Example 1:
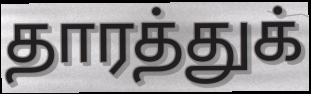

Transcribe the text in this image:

தாரத்துக்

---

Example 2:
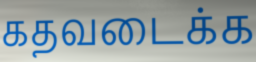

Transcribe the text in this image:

கதவடைக்க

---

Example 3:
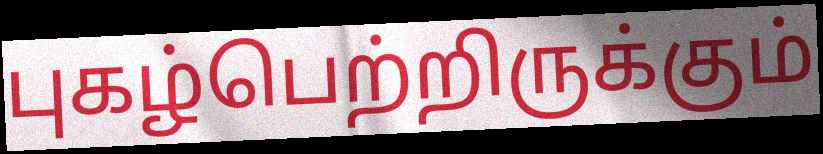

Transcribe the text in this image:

புகழ்பெற்றிருக்கும்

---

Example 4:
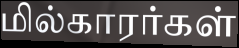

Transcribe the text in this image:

மில்காரர்கள்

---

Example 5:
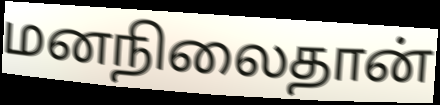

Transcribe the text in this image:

மனநிலைதான்